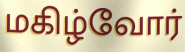
மகிழ்வோர்